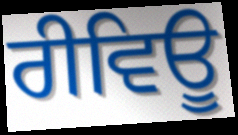
ਰੀਵਿਊ